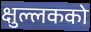
क्षुल्लकको